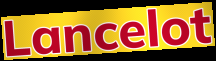
Lancelot